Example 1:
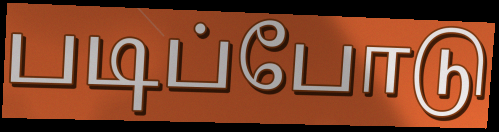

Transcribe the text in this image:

படிப்போடு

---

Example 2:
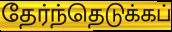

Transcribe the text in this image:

தேர்ந்தெடுக்கப்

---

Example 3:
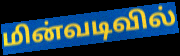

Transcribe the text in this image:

மின்வடிவில்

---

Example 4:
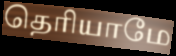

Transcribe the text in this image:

தெரியாமே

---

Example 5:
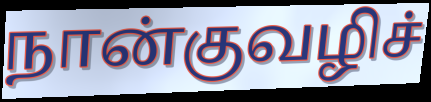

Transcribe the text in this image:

நான்குவழிச்